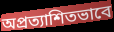
অপ্রত্যাশিতভাবে